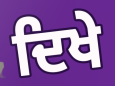
ਦਿਖੇ